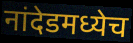
नांदेडमध्येच